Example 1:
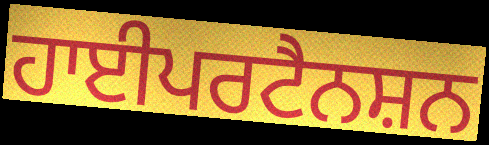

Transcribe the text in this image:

ਹਾਈਪਰਟੈਨਸ਼ਨ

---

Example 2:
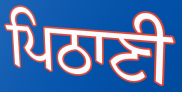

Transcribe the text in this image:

ਪਿਠਾਣੀ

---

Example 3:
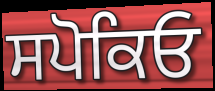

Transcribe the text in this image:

ਸਪੋਕਿਓ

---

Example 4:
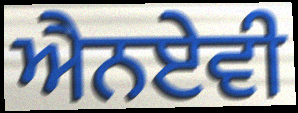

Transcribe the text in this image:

ਐਨਏਵੀ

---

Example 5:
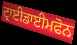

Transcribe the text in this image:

ਟ੍ਰਾਈਡਾਈਮਫੋਨ